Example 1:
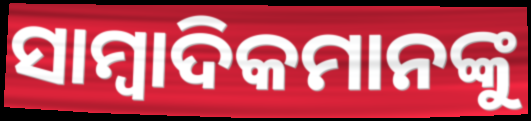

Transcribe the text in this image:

ସାମ୍ବାଦିକମାନଙ୍କୁ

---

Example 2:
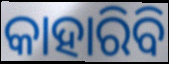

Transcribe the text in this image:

କାହାରିବି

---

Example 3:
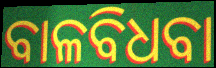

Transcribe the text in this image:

ବାଳବିଧବା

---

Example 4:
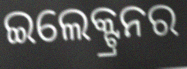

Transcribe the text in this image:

ଇଲେକ୍ଟ୍ରନର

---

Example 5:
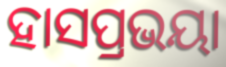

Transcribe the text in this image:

ହାସପ୍ରଭୟା